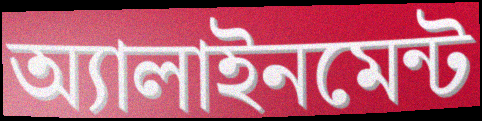
অ্যালাইনমেন্ট